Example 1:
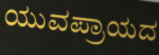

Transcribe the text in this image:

ಯುವಪ್ರಾಯದ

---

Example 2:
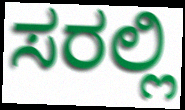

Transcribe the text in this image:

ಸರಲ್ಲಿ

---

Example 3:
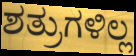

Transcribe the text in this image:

ಶತ್ರುಗಳಿಲ್ಲ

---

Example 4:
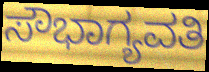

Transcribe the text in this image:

ಸೌಭಾಗ್ಯವತಿ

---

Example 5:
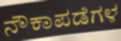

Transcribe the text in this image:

ನೌಕಾಪಡೆಗಳ